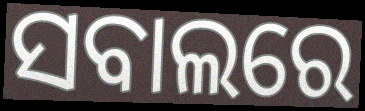
ସବାଲରେ